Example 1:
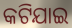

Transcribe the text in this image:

କଟିଯାଇ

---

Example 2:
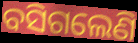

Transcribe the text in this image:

ବସିଗଲେଣି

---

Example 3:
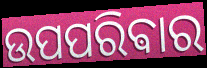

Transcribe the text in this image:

ଉପପରିଵାର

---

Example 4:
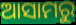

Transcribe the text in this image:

ଆସାମରୁ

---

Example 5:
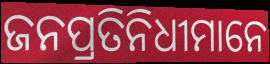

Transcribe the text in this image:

ଜନପ୍ରତିନିଧୀମାନେ